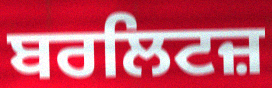
ਬਰਲਿਟਜ਼